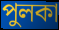
পুলকা